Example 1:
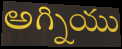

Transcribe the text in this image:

అగ్నియు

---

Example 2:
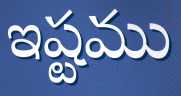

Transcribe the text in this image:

ఇష్టము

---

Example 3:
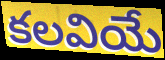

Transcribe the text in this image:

కలవియే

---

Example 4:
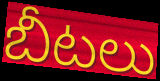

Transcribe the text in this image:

బీటలు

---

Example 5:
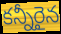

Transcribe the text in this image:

కన్నీరైన